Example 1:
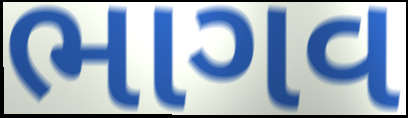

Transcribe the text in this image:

ભાગવ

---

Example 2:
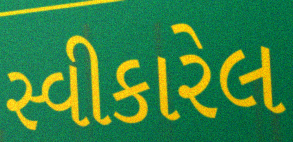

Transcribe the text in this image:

સ્વીકારેલ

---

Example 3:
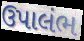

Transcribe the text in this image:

ઉપાલંભ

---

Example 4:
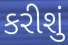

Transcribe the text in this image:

કરીશું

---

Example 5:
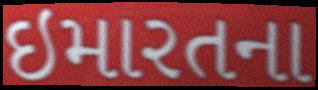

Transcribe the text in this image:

ઇમારતના